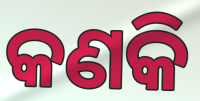
କଣକି